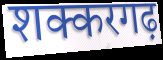
शक्करगढ़